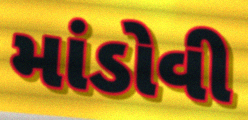
માંડોવી